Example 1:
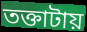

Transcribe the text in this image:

তক্তাটায়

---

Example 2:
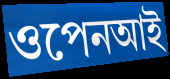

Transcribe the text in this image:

ওপেনআই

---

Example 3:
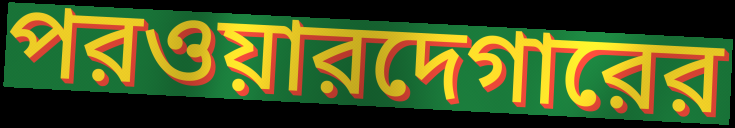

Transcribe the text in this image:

পরওয়ারদেগারের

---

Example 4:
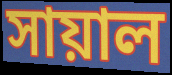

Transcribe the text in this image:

সায়াল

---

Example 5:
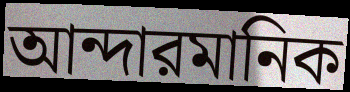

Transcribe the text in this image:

আন্দারমানিক